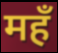
महँ